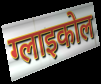
ग्लाइकोल